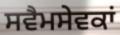
ਸਵੈਮਸੇਵਕਾਂ